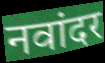
नवांदर